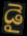
డై